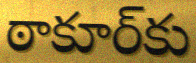
ఠాకూర్‌కు